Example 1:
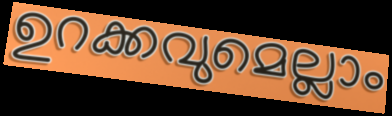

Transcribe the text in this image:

ഉറക്കവുമെല്ലാം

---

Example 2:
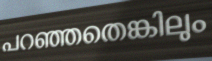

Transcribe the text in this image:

പറഞ്ഞതെങ്കിലും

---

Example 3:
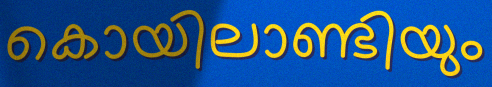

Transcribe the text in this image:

കൊയിലാണ്ടിയും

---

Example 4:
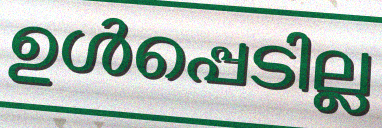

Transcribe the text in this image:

ഉൾപ്പെടില്ല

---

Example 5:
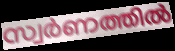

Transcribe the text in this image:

സ്വർണത്തിൽ